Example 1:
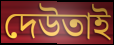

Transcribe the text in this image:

দেউতাই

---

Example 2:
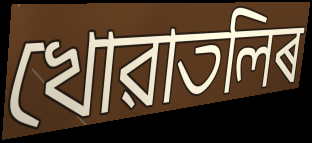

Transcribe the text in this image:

খোৱাতলিৰ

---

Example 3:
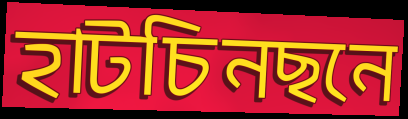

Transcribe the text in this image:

হাটচিনছনে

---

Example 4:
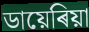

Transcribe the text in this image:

ডায়েৰিয়া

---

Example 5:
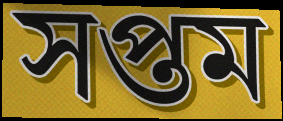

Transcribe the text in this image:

সপ্তম